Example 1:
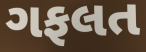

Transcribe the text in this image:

ગફલત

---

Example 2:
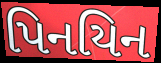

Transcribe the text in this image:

પિનયિન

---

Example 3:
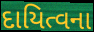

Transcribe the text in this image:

દાયિત્વના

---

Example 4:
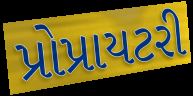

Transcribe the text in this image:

પ્રોપ્રાયટરી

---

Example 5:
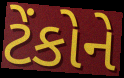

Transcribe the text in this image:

ટેંકોને